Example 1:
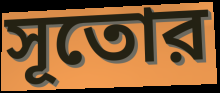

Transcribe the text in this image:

সূতোর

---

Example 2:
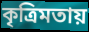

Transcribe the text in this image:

কৃত্রিমতায়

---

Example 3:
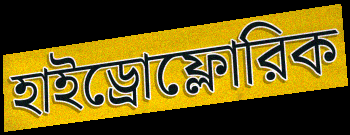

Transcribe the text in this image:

হাইড্রোফ্লোরিক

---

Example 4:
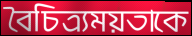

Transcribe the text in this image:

বৈচিত্র্যময়তাকে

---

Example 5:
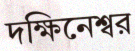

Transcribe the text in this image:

দক্ষিনেশ্বর